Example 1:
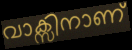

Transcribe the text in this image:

വാക്സിനാണ്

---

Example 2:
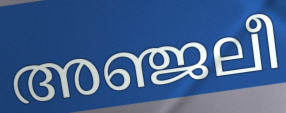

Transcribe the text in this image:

അഞ്ജലീ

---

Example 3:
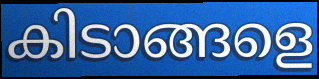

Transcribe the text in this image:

കിടാങ്ങളെ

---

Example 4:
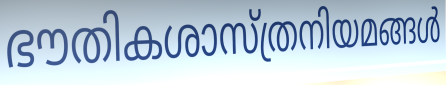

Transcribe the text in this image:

ഭൗതികശാസ്ത്രനിയമങ്ങൾ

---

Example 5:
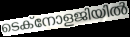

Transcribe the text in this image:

ടെക്‌നോളജിയിൽ